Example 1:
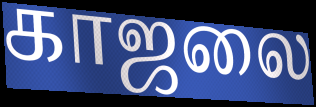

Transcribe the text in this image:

காஜலை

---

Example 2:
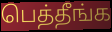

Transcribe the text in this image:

பெத்தீங்க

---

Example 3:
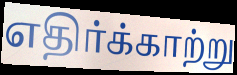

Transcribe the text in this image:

எதிர்க்காற்று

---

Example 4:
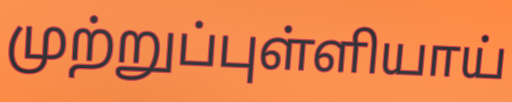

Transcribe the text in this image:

முற்றுப்புள்ளியாய்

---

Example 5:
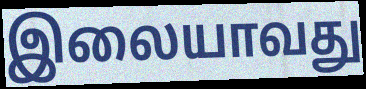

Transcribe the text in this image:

இலையாவது